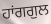
ਹਾਂਗਗੁਲ